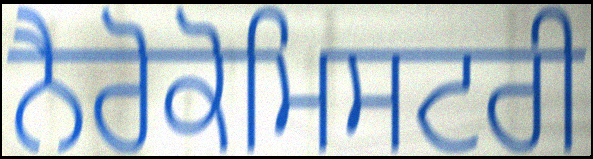
ਨੈਰੋਕੋਮਿਸਟਰੀ